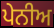
ਪੇਨੀਅ